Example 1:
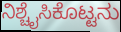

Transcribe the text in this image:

ನಿಶ್ಚೈಸಿಕೊಟ್ಟನು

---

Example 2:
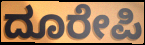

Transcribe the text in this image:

ದೂರೇಪಿ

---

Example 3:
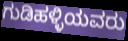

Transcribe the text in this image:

ಗುಡಿಹಳ್ಳಿಯವರು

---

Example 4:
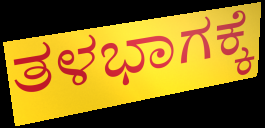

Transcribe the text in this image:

ತಳಭಾಗಕ್ಕೆ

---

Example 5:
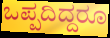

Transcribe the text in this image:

ಒಪ್ಪದಿದ್ದರೂ